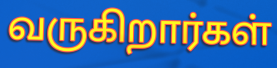
வருகிறார்கள்